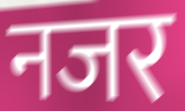
नजर